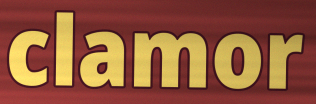
clamor